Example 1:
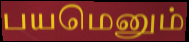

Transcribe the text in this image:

பயமெனும்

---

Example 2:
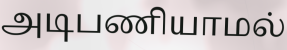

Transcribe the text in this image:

அடிபணியாமல்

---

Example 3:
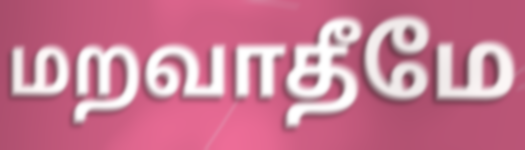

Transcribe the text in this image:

மறவாதீமே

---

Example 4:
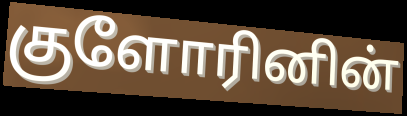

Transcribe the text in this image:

குளோரினின்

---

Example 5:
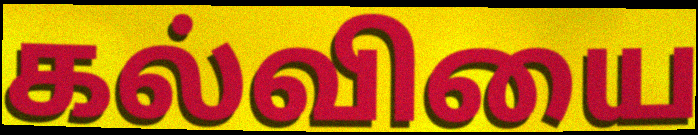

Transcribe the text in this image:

கல்வியை